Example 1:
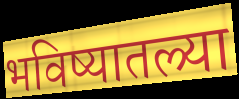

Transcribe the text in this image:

भविष्यातल्या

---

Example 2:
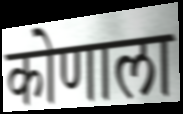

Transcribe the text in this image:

कोणाला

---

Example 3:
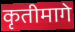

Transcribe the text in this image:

कृतीमागे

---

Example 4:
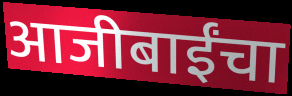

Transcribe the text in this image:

आजीबाईंचा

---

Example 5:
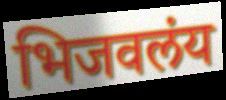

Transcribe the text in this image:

भिजवलंय